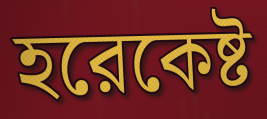
হরেকেষ্ট